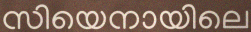
സിയെനായിലെ